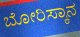
ಬೋರಿಸ್ಕಾನ